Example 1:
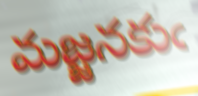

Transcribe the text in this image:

మజ్జనకుఁ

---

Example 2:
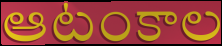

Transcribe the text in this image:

ఆటంకాల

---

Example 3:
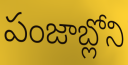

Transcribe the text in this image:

పంజాబ్లోని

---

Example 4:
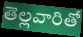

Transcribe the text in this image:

తెల్లవారితో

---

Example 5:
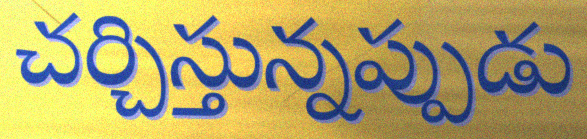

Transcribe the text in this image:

చర్చిస్తున్నప్పుడు